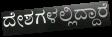
ದೇಶಗಳಲ್ಲಿದ್ದಾರೆ